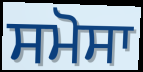
ਸਮੋਸਾ